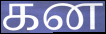
கன